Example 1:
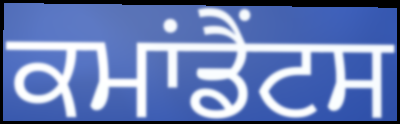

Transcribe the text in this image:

ਕਮਾਂਡੈਂਟਸ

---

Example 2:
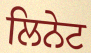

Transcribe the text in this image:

ਲਿਨੇਟ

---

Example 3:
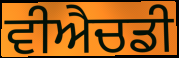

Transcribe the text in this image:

ਵੀਐਚਡੀ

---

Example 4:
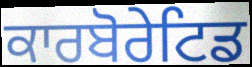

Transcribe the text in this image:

ਕਾਰਬੋਰੇਟਿਡ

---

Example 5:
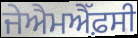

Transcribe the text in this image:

ਜੇਐਮਐੱਫ਼ਸੀ